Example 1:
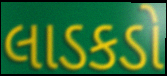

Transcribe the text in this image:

લાડકડો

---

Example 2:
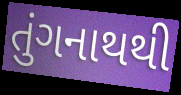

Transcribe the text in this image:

તુંગનાથથી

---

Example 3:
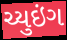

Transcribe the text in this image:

ચ્યુઇંગ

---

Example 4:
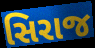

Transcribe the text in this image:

સિરાજ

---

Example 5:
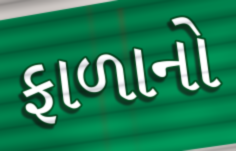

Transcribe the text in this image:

ફાળાનો